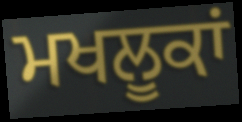
ਮਖਲੂਕਾਂ